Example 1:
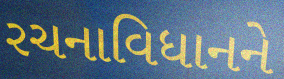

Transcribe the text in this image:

રચનાવિધાનને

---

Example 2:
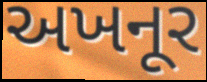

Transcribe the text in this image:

અખનૂર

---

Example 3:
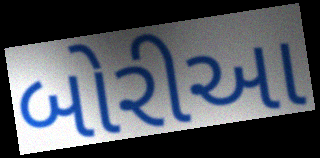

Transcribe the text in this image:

બોરીઆ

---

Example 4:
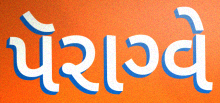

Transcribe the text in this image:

પૅરાગ્વે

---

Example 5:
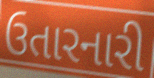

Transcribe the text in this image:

ઉતારનારી